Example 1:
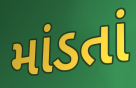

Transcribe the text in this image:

માંડતાં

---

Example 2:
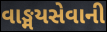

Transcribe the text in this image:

વાઙ્મયસેવાની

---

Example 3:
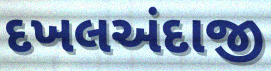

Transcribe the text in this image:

દખલઅંદાજી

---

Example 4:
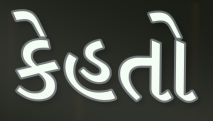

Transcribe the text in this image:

કેહતો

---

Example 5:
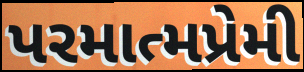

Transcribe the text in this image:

પરમાત્મપ્રેમી